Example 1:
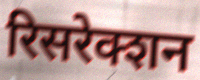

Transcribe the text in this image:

रिसरेक्शन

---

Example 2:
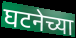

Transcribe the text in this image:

घटनेच्या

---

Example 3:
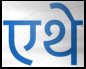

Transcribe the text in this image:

एथे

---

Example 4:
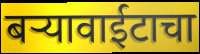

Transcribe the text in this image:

बऱ्यावाईटाचा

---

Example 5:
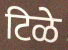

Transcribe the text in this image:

टिळे